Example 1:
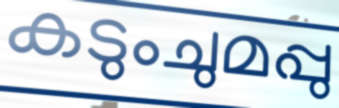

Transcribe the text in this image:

കടുംചുമപ്പു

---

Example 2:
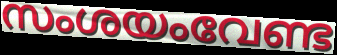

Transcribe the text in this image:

സംശയംവേണ്ട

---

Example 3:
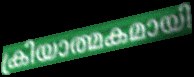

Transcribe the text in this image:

ക്രിയാത്മകമായി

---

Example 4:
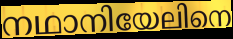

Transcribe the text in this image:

നഥാനിയേലിനെ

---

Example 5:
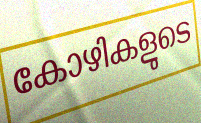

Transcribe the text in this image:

കോഴികളുടെ